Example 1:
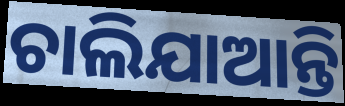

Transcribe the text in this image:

ଚାଲିଯାଆନ୍ତି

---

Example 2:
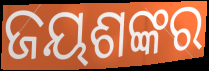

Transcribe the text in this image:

ଜୟଶଙ୍କର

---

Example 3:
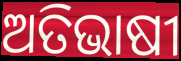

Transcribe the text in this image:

ଅତିଭାଷୀ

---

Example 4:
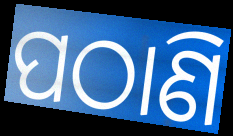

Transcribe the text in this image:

ପଠାଣି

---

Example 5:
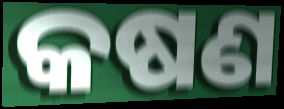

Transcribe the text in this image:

କଷଣ